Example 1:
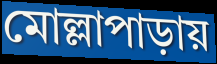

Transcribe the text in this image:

মোল্লাপাড়ায়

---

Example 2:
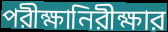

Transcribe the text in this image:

পরীক্ষানিরীক্ষার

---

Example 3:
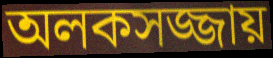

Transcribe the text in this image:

অলকসজ্জায়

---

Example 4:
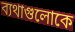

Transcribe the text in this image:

ব্যথাগুলোকে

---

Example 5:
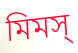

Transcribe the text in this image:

মিমস্